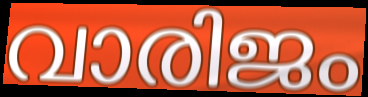
വാരിജം